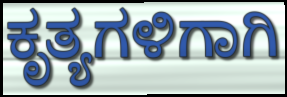
ಕೃತ್ಯಗಳಿಗಾಗಿ